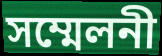
সম্মেলনী